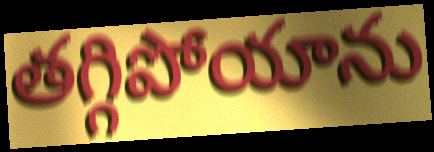
తగ్గిపోయాను